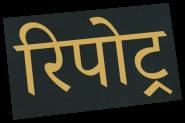
रिपोट्र